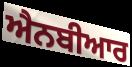
ਐਨਬੀਆਰ